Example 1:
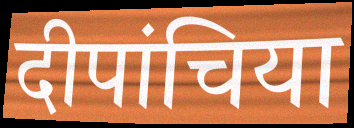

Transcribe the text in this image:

दीपांचिया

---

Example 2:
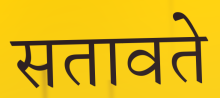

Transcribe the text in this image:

सतावते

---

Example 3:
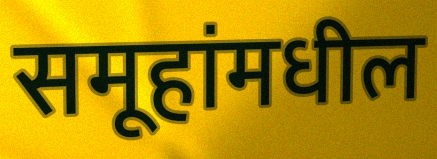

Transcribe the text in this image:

समूहांमधील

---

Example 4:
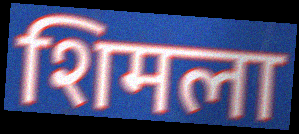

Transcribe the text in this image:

शिमला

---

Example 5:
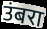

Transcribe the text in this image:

उंबरा